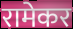
रामेकर